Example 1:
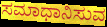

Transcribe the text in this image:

ಸಮಾಧಾನಿಸುವ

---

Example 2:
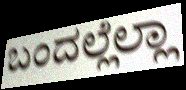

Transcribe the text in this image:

ಬಂದಲ್ಲೆಲ್ಲಾ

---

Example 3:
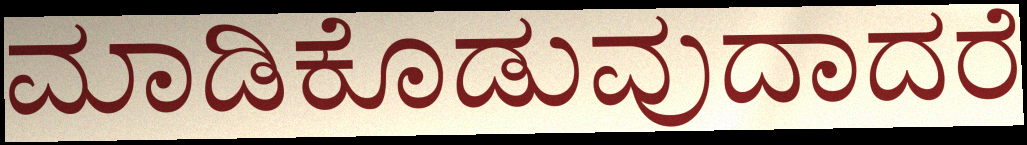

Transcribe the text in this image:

ಮಾಡಿಕೊಡುವುದಾದರೆ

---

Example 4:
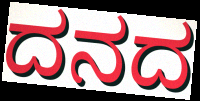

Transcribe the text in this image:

ದನದ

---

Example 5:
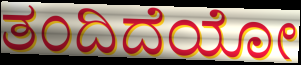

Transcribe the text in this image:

ತಂದಿದೆಯೋ